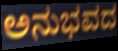
ಅನುಭವದ